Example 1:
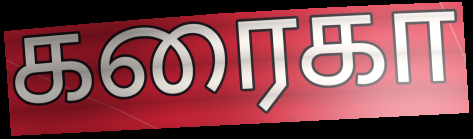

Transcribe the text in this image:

கரைகா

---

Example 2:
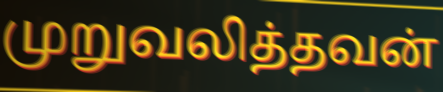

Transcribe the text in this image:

முறுவலித்தவன்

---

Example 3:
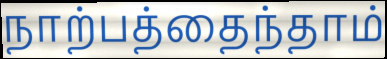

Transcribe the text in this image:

நாற்பத்தைந்தாம்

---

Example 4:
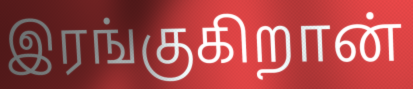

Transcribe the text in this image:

இரங்குகிறான்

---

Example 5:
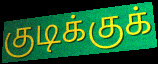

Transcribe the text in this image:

குடிக்குக்